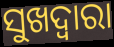
ସୁଖଦ୍ଵାରା